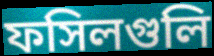
ফসিলগুলি